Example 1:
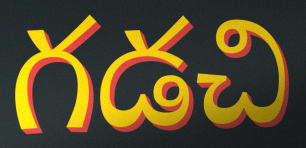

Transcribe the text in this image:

గడచి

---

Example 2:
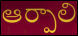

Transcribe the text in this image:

ఆర్పాలి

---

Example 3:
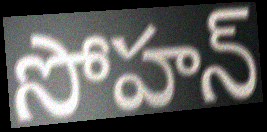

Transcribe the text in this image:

సోహన్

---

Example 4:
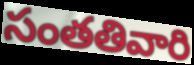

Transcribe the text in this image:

సంతతివారి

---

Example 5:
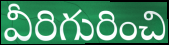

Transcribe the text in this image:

వీరిగురించి